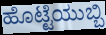
ಹೊಟ್ಟೆಯುಬ್ಬಿ